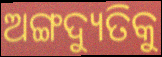
ଅଙ୍ଗଦ୍ୟୁତିକୁ